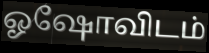
ஓஷோவிடம்